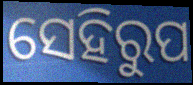
ସେହିରୁପ